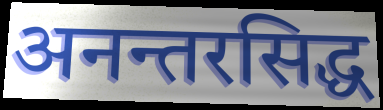
अनन्तरसिद्ध